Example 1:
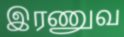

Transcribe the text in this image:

இரணுவ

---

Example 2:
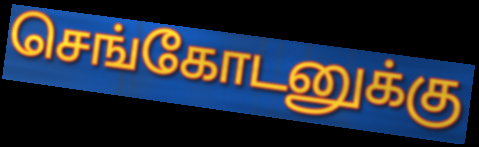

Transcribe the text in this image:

செங்கோடனுக்கு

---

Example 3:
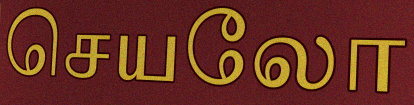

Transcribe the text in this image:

செயலோ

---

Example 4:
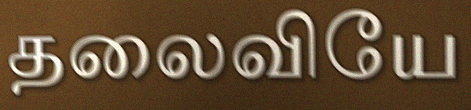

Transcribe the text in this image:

தலைவியே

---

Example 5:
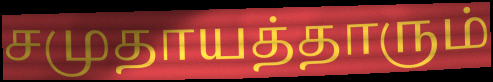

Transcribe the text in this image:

சமுதாயத்தாரும்